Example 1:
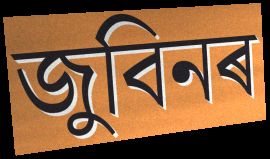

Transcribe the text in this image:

জুবিনৰ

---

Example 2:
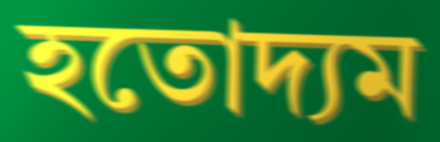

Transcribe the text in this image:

হতোদ্যম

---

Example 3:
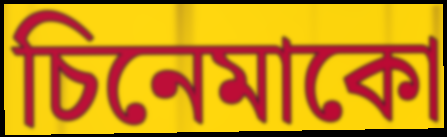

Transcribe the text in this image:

চিনেমাকো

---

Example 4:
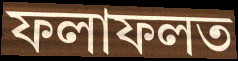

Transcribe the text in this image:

ফলাফলত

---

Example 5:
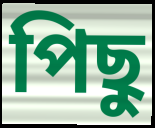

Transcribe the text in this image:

পিছু